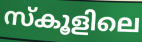
സ്കൂളിലെ